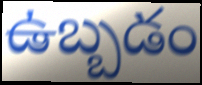
ఉబ్బడం